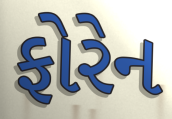
ફોરેન